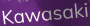
Kawasaki